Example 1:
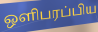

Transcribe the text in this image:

ஒளிபரப்பிய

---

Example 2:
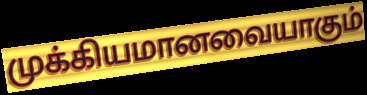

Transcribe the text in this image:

முக்கியமானவையாகும்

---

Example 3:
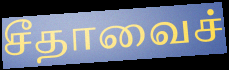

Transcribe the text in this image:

சீதாவைச்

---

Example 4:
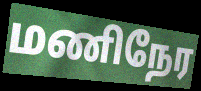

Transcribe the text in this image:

மணிநேர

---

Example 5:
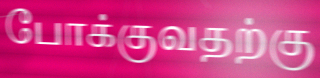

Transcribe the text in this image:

போக்குவதற்கு